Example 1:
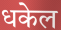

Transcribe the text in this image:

धकेल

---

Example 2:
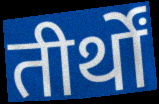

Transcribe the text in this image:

तीर्थों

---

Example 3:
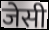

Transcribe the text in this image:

जेसी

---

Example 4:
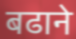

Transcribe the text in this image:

बढाने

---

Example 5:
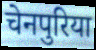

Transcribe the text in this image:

चेनपुरिया